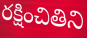
రక్షించితిని